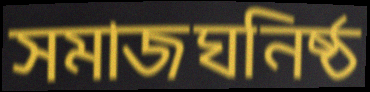
সমাজঘনিষ্ঠ